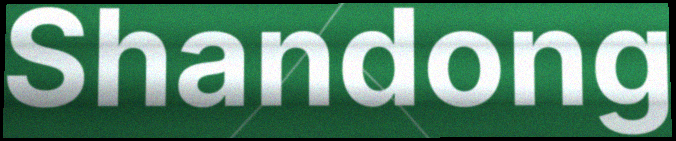
Shandong